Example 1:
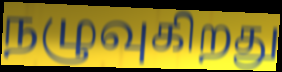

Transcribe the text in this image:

நழுவுகிறது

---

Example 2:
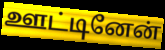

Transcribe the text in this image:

ஊட்டினேன்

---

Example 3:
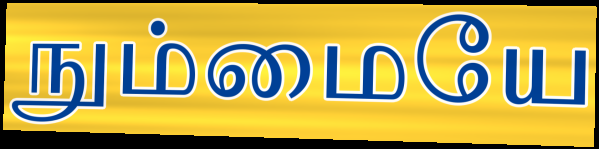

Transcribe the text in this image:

நும்மையே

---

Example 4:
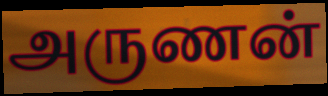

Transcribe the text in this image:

அருணன்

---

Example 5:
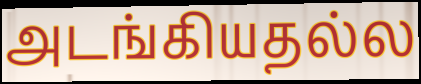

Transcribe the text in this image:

அடங்கியதல்ல